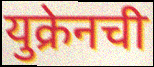
युक्रेनची